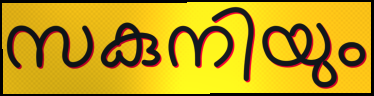
സകുനിയും